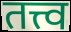
तत्त्व